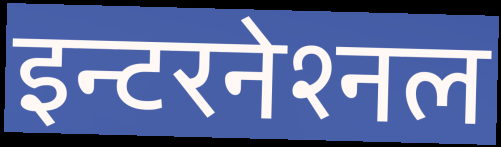
इन्टरनेश्नल